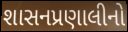
શાસનપ્રણાલીનો